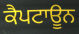
ਕੈਪਟਾਊਨ